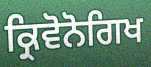
ਕ੍ਰਿਵੋਨੋਗਿਖ